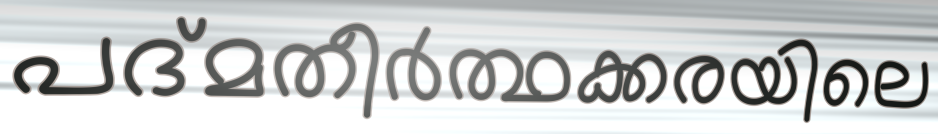
പദ്മതീർത്ഥക്കരയിലെ